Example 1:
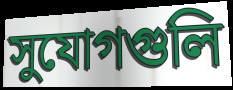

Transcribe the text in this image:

সুযোগগুলি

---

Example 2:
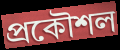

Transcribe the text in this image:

প্রকৌশল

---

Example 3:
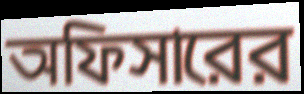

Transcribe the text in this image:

অফিসারের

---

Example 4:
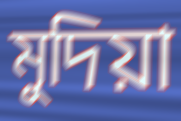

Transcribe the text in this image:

মুদিয়া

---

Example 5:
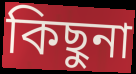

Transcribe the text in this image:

কিছুনা